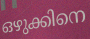
ഒഴുക്കിനെ